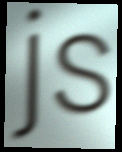
js